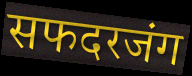
सफदरजंग